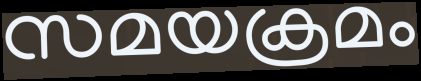
സമയക്രമം